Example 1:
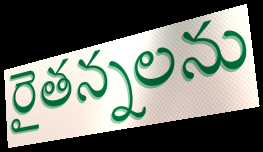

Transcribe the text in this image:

రైతన్నలను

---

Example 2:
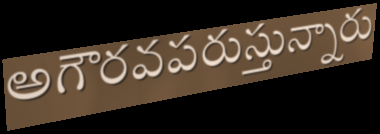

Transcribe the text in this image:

అగౌరవపరుస్తున్నారు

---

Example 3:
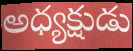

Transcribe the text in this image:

అధ్యక్షుడు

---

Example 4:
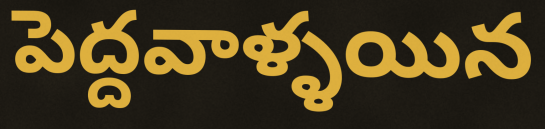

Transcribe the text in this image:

పెద్దవాళ్ళయిన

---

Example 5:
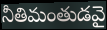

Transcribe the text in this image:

నీతిమంతుడవై